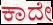
ಕಾದೇ